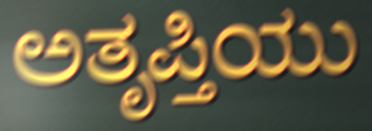
ಅತೃಪ್ತಿಯು